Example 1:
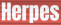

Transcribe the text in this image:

Herpes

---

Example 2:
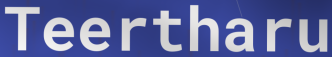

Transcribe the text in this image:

Teertharu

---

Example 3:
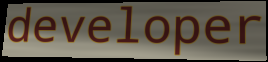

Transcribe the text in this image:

developer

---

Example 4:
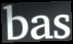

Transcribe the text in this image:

bas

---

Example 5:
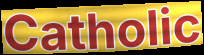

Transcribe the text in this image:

Catholic